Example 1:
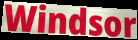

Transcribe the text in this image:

Windsor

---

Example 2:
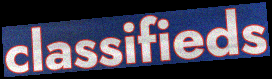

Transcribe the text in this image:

classifieds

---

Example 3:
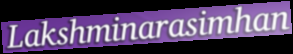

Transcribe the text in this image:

Lakshminarasimhan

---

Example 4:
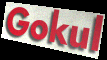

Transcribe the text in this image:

Gokul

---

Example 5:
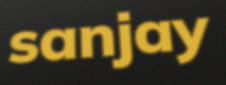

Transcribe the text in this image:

sanjay